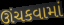
ઊંચકવામાં